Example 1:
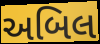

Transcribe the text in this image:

અબિલ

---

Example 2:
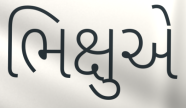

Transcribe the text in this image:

ભિક્ષુએ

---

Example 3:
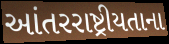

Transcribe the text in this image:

આંતરરાષ્ટ્રીયતાના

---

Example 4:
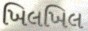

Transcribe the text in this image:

ખિલખિલ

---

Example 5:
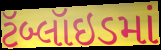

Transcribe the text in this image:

ટૅબ્લૉઇડમાં